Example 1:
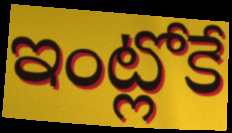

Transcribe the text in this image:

ఇంట్లోకే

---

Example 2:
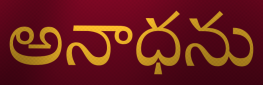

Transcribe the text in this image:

అనాధను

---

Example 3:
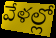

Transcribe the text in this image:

వేళల్లో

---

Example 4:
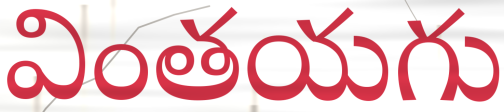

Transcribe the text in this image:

వింతయగు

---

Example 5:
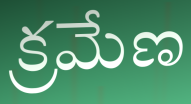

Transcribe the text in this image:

క్రమేణ